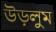
উড়লুম